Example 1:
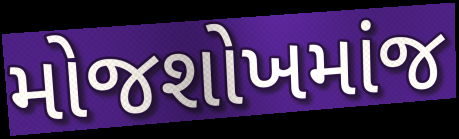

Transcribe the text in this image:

મોજશોખમાંજ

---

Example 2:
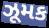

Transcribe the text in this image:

ઝૂમક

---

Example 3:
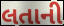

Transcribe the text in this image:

લતાની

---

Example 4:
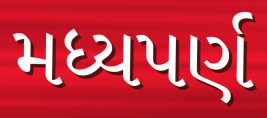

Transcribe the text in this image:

મધ્યપર્ણ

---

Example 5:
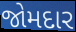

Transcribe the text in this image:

જોમદાર